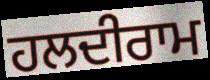
ਹਲਦੀਰਾਮ